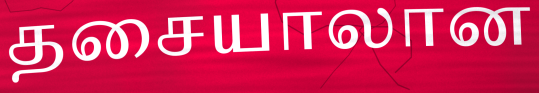
தசையாலான